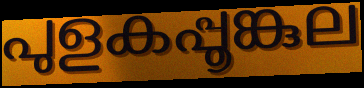
പുളകപ്പൂങ്കുല